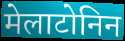
मेलाटोनिन